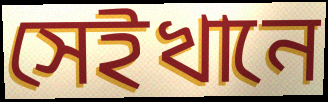
সেইখানে